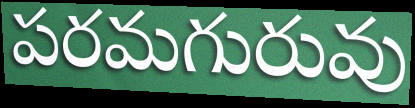
పరమగురువు